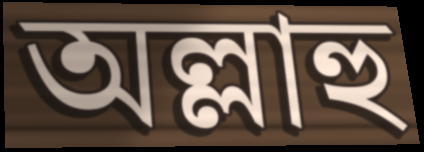
অল্লাহু